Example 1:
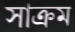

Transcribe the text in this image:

সাক্রম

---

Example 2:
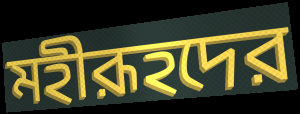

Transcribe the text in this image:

মহীরূহদের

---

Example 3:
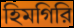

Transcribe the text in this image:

হিমগিরি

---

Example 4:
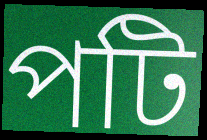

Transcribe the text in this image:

পটি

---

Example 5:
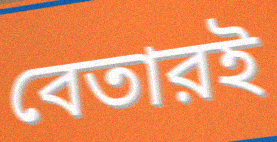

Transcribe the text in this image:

বেতারই